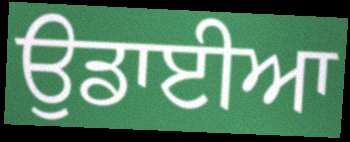
ਉਡਾਈਆ